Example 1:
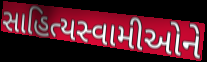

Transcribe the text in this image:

સાહિત્યસ્વામીઓને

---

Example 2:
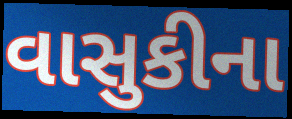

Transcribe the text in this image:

વાસુકીના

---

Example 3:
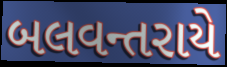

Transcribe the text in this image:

બલવન્તરાયે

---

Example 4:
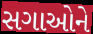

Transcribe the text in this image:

સગાઓને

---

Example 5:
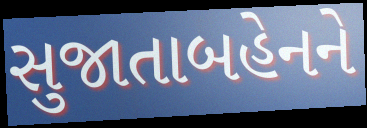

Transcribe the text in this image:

સુજાતાબહેનને